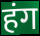
हंग